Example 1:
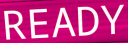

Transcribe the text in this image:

READY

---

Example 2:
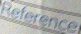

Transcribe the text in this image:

Reference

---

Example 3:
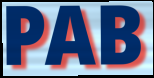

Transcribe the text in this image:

PAB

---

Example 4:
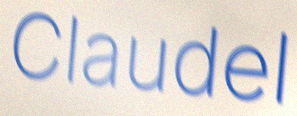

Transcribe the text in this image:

Claudel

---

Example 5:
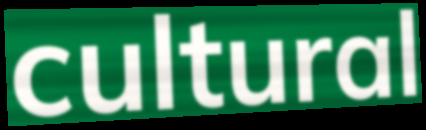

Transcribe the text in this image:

cultural